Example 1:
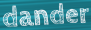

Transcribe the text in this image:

dander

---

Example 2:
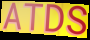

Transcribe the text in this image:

ATDS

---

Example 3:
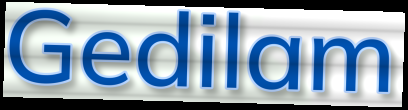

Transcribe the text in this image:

Gedilam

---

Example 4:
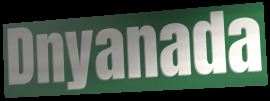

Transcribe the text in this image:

Dnyanada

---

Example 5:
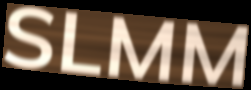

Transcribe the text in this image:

SLMM